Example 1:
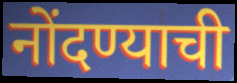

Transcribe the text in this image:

नोंदण्याची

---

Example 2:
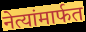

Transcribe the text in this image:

नेत्यांमार्फत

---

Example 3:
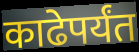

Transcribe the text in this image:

काढेपर्यंत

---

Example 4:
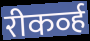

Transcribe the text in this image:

रीकर्व्ह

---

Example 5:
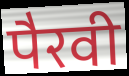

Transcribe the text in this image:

पैरवी